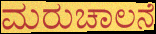
ಮರುಚಾಲನೆ